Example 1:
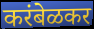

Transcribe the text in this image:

करंबेळकर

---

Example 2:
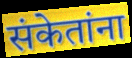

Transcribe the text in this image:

संकेतांना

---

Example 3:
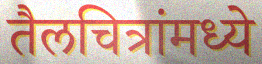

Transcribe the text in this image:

तैलचित्रांमध्ये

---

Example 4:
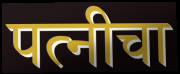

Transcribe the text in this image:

पत्नीचा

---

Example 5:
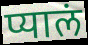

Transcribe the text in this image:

प्यालं